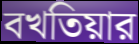
বখতিয়ার